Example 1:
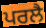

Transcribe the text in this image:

ਪਰਲੈ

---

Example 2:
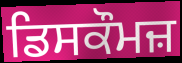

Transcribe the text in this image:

ਡਿਸਕੌਮਜ਼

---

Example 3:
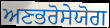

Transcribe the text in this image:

ਅਣਭਰੋਸੇਯੋਗ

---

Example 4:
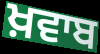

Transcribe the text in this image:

ਖ਼ਵਾਬ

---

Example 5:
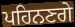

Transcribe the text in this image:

ਪਹਿਨਣਗੇ